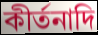
কীর্তনাদি